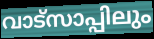
വാട്സാപ്പിലും